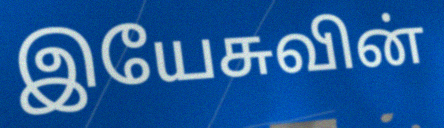
இயேசுவின்